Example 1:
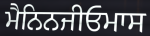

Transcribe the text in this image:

ਮੈਨਿਨਜੀਓਮਾਸ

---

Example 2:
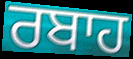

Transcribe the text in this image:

ਰਬਾਹ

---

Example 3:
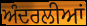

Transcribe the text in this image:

ਅੰਦਰਲੀਆਂ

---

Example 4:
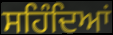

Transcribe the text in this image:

ਸਹਿੰਦਿਆਂ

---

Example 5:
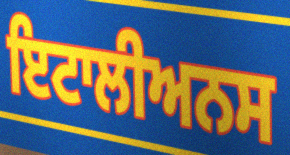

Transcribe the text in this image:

ਇਟਾਲੀਅਨਸ